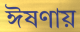
ঈষণায়